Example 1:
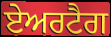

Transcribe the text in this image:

ਏਅਰਟੈਗ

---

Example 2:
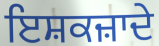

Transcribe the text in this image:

ਇਸ਼ਕਜ਼ਾਦੇ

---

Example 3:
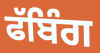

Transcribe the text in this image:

ਫੱਬਿੰਗ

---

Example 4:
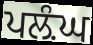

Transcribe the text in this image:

ਪਲ਼ੰਘ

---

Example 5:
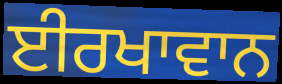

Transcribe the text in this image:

ਈਰਖਾਵਾਨ